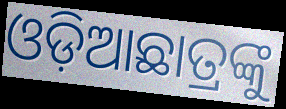
ଓଡ଼ିଆଛାତ୍ରଙ୍କୁ